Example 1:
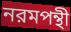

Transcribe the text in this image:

নরমপন্থী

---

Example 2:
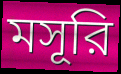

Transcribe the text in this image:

মসূরি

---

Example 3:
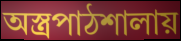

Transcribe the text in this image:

অস্ত্রপাঠশালায়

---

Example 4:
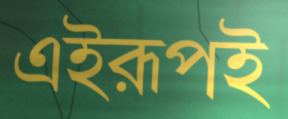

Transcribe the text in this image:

এইরূপই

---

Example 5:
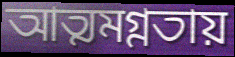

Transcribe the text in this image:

আত্মমগ্নতায়